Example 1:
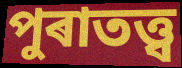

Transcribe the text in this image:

পুৰাতত্ত্ব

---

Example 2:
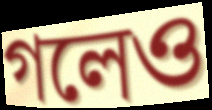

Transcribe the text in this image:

গলেও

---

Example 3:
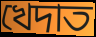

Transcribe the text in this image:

খেদাত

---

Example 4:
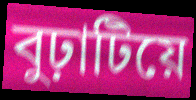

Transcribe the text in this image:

বুঢ়াটিয়ে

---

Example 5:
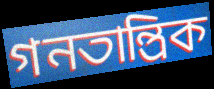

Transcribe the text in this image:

গনতান্ত্ৰিক